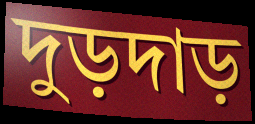
দুড়দাড়